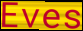
Eves